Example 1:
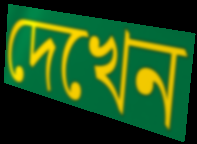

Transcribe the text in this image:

দেখেন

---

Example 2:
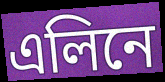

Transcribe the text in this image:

এলিনে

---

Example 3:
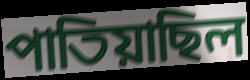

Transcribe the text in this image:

পাতিয়াছিল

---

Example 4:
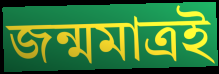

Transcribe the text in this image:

জন্মমাত্রই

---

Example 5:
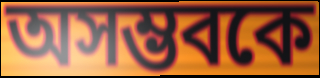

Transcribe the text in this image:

অসম্ভবকে